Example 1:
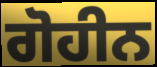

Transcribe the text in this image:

ਗੋਹੀਨ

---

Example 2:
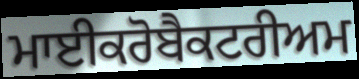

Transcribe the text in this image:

ਮਾਈਕਰੋਬੈਕਟਰੀਅਮ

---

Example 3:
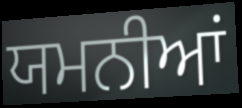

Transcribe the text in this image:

ਯਮਨੀਆਂ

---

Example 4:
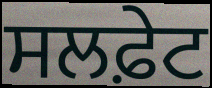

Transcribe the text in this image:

ਸਲਫ਼ੇਟ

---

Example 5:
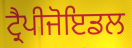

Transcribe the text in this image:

ਟ੍ਰੈਪੀਜੋਇਡਲ